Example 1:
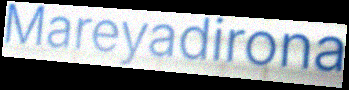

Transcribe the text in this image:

Mareyadirona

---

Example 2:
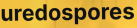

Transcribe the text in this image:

uredospores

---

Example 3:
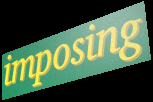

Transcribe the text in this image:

imposing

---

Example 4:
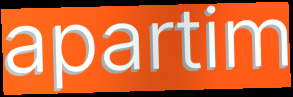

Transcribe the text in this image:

apartim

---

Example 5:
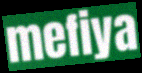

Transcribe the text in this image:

mefiya